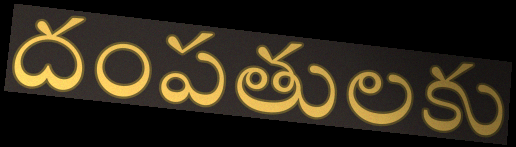
దంపతులకు